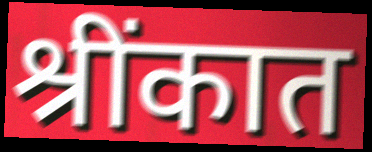
श्रींकात